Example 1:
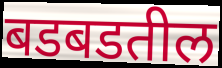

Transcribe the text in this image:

बडबडतील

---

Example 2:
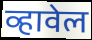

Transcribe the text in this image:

व्हावेल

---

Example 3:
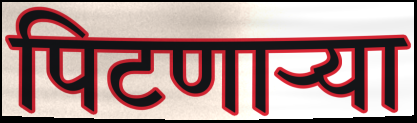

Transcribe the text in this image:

पिटणाऱ्या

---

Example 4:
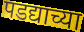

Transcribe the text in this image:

पडद्याच्या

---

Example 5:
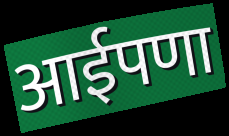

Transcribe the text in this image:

आईपणा